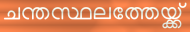
ചന്തസ്ഥലത്തേയ്ക്ക്